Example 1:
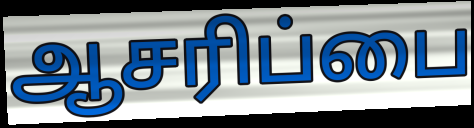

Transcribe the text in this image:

ஆசரிப்பை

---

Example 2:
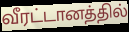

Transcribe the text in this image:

வீரட்டானத்தில்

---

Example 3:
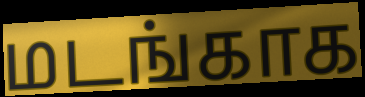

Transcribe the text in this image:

மடங்காக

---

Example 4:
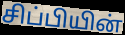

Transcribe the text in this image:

சிப்பியின்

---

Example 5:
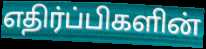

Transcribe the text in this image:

எதிர்ப்பிகளின்